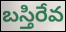
బస్తిరేవ